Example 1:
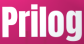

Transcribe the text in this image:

Prilog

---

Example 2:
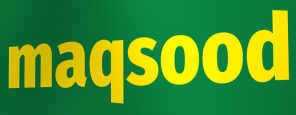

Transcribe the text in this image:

maqsood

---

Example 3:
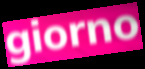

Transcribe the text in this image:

giorno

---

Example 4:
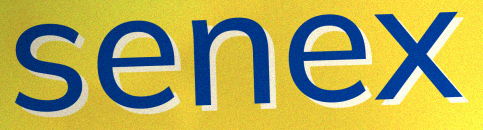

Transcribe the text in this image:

senex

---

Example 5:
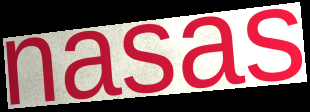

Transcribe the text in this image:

nasas